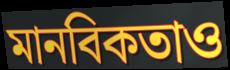
মানবিকতাও